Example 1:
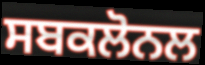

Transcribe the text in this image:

ਸਬਕਲੋਨਲ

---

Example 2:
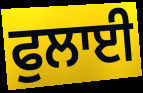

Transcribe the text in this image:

ਫੁਲਾਈ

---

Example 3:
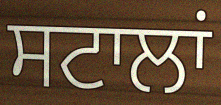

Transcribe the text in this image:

ਸਟਾਲਾਂ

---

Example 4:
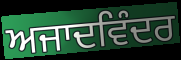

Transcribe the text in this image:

ਅਜਾਦਵਿੰਦਰ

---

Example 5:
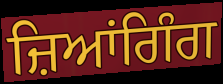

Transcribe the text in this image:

ਜ਼ਿਆਂਗਿੰਗ